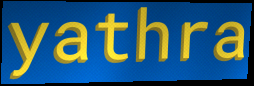
yathra